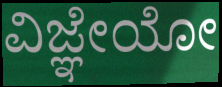
ವಿಜ್ಞೇಯೋ